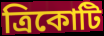
ত্রিকোটি